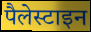
पैलेस्टाइन